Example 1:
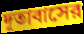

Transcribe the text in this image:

দূতাবাসের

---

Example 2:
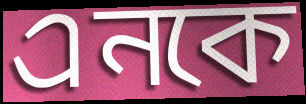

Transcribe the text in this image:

এনকে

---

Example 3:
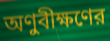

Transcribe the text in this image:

অণুবীক্ষণের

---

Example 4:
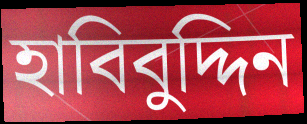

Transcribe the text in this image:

হাবিবুদ্দিন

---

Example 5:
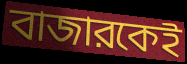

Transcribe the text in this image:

বাজারকেই